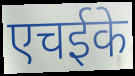
एचईके